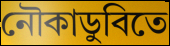
নৌকাডুবিতে